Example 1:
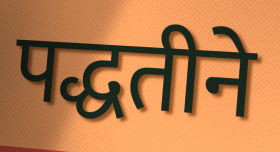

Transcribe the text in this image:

पद्धतीने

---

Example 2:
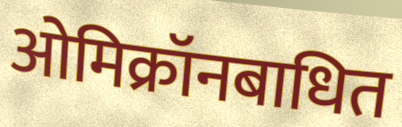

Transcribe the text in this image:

ओमिक्रॉनबाधित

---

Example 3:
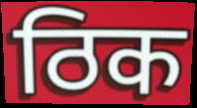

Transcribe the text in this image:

ठिक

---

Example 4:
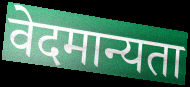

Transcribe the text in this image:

वेदमान्यता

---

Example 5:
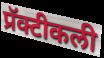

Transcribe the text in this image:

प्रॅक्टीकली